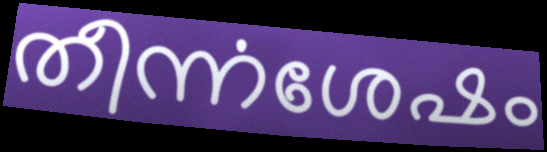
തീൎന്നശേഷം